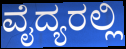
ವೈದ್ಯರಲ್ಲಿ